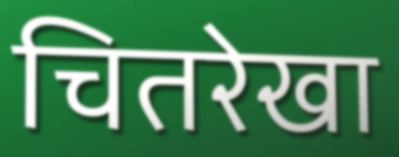
चितरेखा